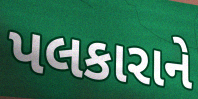
પલકારાને